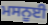
ਮਸਨੂਈ